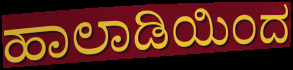
ಹಾಲಾಡಿಯಿಂದ